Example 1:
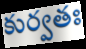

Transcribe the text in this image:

కుర్వతః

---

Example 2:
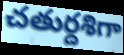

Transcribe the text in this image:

చతుర్దశిగా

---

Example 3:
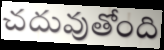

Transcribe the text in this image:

చదువుతోంది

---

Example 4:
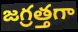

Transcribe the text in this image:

జగ్రత్తగా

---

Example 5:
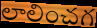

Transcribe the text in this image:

లాలించగ